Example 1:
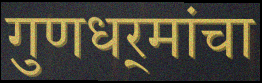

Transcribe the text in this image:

गुणधर्मांचा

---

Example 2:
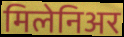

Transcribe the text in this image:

मिलेनिअर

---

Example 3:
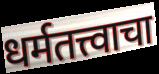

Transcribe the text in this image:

धर्मतत्त्वाचा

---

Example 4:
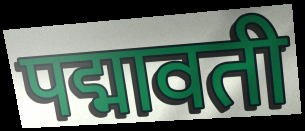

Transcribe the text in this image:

पद्मावती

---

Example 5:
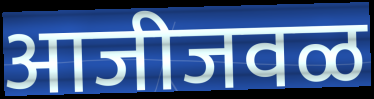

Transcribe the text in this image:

आजीजवळ